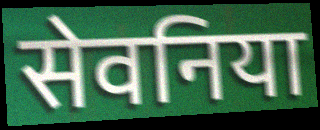
सेवनिया